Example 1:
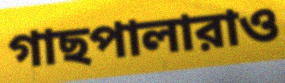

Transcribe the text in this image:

গাছপালারাও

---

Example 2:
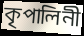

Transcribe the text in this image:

কৃপালিনী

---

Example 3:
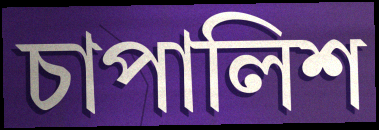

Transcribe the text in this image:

চাপালিশ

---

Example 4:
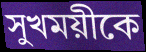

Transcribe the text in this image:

সুখময়ীকে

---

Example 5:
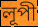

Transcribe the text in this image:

লূপী